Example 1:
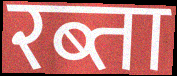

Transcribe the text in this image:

रब्ता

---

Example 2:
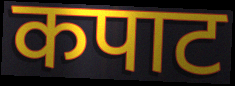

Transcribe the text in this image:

कपाट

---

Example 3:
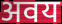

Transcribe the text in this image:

अवय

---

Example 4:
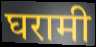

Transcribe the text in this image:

घरामी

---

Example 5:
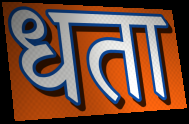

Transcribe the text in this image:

धता